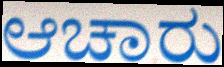
ಆಚಾರು